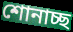
শোনাচ্ছ